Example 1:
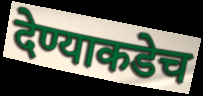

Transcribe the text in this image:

देण्याकडेच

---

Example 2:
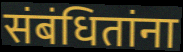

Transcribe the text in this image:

संबंधितांना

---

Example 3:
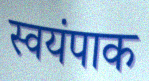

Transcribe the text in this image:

स्वयंपाक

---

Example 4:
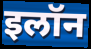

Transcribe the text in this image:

इलॉन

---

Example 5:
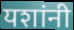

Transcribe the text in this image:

यशांनी